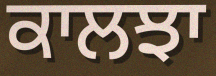
ਕਾਲਝਾ